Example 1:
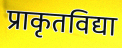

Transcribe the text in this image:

प्राकृतविद्या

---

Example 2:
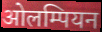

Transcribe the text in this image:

ओलम्पियन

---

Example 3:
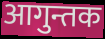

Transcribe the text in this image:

आगुन्तक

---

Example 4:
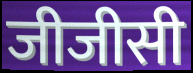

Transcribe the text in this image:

जीजीसी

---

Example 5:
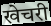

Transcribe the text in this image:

खेचरी